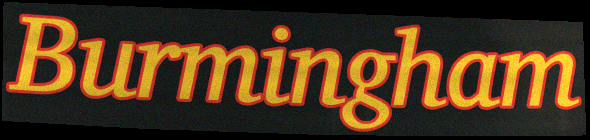
Burmingham